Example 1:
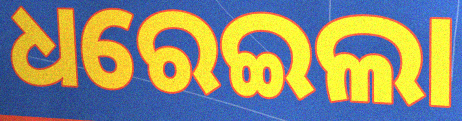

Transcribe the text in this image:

ଧରେଇଲା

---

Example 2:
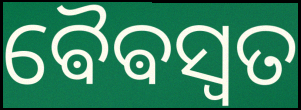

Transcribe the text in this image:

ଵୈଵସ୍ୱତ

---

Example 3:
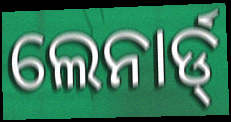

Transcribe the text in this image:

ଲେନାର୍ଡ୍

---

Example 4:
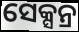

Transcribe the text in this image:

ସେକ୍ସନ୍ର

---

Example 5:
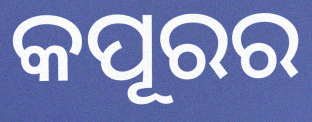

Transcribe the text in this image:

କପୂରର